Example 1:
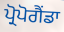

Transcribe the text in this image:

ਪ੍ਰੋਪੋਗੈਂਡਾ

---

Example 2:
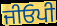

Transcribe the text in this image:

ਜੀਓਪੀ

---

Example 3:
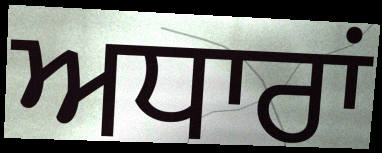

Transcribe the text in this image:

ਅਧਾਰਾਂ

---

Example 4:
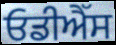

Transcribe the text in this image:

ਓਡੀਐੱਸ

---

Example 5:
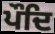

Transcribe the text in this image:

ਪੌਦਿ